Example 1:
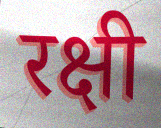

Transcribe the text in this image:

रक्षी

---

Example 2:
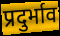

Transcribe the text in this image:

प्रदुर्भाव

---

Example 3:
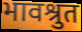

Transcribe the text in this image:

भावश्रुत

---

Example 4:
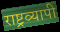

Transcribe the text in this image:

राष्ट्रव्यापी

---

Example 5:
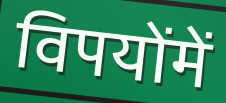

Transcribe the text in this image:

विपयोंमें